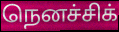
நெனச்சிக்